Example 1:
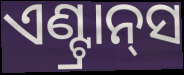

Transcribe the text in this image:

ଏଣ୍ଟ୍ରାନ୍‌ସ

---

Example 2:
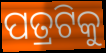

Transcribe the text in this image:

ପତ୍ରଟିକୁ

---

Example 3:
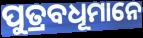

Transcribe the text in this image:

ପୁତ୍ରବଧୂମାନେ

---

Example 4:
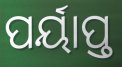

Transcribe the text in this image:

ପର୍ୟାପ୍ତ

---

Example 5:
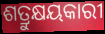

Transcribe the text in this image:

ଶତ୍ରୁକ୍ଷୟକାରୀ